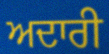
ਅਦਾਰੀ